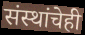
संस्थांचेही